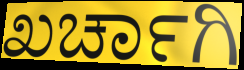
ಖರ್ಚಾಗಿ